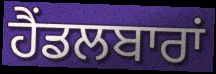
ਹੈਂਡਲਬਾਰਾਂ